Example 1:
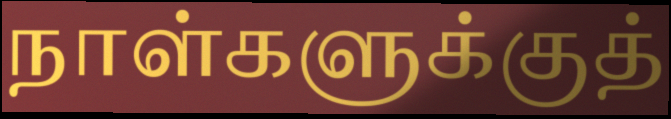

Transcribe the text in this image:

நாள்களுக்குத்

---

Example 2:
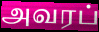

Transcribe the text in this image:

அவரப்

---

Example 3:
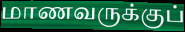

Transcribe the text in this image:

மாணவருக்குப்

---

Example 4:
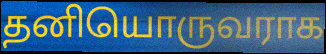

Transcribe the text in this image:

தனியொருவராக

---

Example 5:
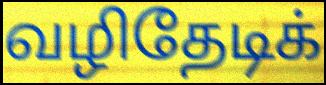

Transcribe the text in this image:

வழிதேடிக்